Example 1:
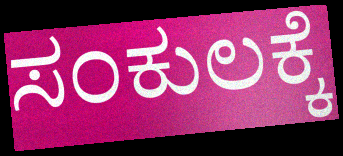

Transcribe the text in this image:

ಸಂಕುಲಕ್ಕೆ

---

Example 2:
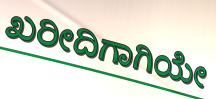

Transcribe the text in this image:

ಖರೀದಿಗಾಗಿಯೇ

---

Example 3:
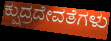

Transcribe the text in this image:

ಕ್ಷುದ್ರದೇವತೆಗಳು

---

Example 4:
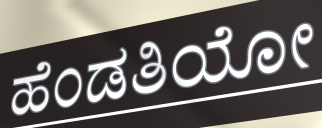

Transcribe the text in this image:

ಹೆಂಡತಿಯೋ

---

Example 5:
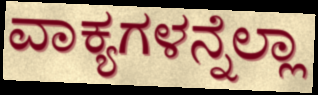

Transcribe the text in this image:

ವಾಕ್ಯಗಳನ್ನೆಲ್ಲಾ